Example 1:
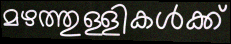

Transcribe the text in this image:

മഴത്തുള്ളികൾക്ക്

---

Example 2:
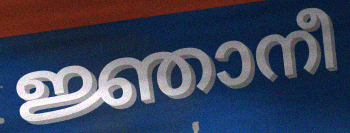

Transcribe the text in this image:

ജ്ഞാനീ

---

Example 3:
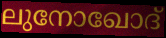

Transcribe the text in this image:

ലുനോഖോദ്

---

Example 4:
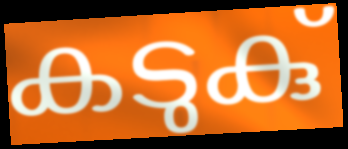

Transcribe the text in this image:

കടുകു്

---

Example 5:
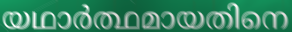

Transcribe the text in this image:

യഥാർത്ഥമായതിനെ